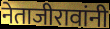
नेताजीरावांनी